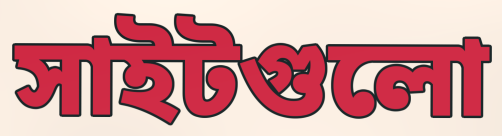
সাইটগুলো